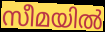
സീമയിൽ